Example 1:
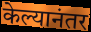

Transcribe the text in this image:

केल्यानंतर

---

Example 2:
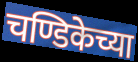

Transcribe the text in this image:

चण्डिकेच्या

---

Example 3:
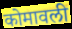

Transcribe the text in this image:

कोमावली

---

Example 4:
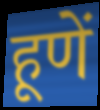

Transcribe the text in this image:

हूणें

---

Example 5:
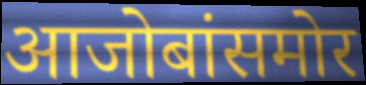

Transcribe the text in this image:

आजोबांसमोर